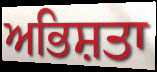
ਅਭਿਸ਼ਤਾ